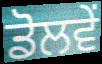
ਡੋਲਵੇਂ